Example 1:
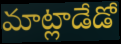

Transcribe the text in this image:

మాట్లాడేడో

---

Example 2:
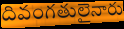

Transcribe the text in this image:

దివంగతులైనారు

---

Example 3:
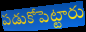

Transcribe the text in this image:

పడుకోపెట్టారు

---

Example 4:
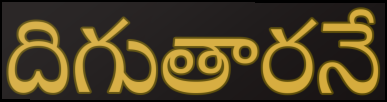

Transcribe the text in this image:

దిగుతారనే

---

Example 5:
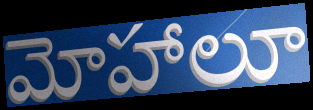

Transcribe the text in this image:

మోహాలూ